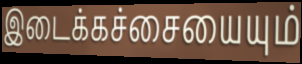
இடைக்கச்சையையும்